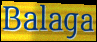
Balaga